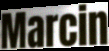
Marcin